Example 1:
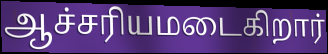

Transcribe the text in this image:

ஆச்சரியமடைகிறார்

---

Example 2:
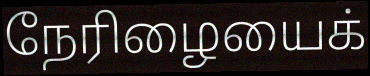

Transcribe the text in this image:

நேரிழையைக்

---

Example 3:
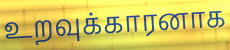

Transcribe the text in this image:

உறவுக்காரனாக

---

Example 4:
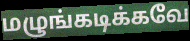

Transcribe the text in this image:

மழுங்கடிக்கவே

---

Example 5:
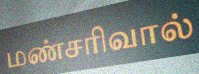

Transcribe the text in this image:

மண்சரிவால்